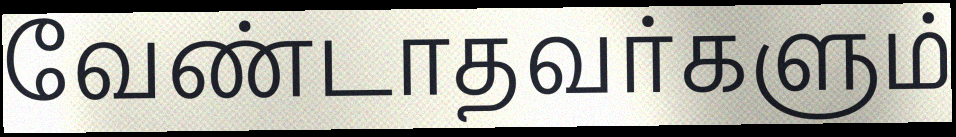
வேண்டாதவர்களும்